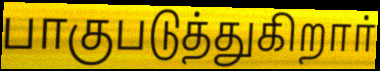
பாகுபடுத்துகிறார்